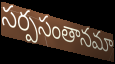
సర్పసంతానమా